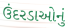
ઉંદરડાઓનું